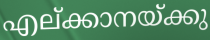
എല്ക്കാനയ്ക്കു